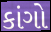
કાંગો